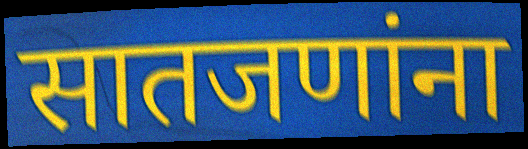
सातजणांना